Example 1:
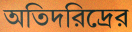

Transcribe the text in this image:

অতিদরিদ্রের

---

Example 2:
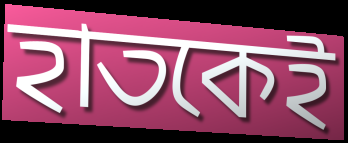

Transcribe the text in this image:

হাতকেই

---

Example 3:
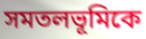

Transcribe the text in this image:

সমতলভূমিকে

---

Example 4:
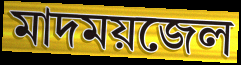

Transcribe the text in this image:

মাদময়জেল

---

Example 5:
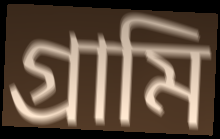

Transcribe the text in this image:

গ্রামি